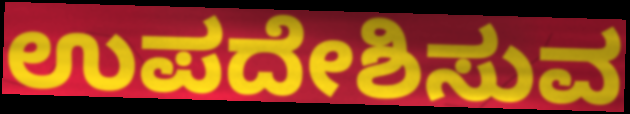
ಉಪದೇಶಿಸುವ